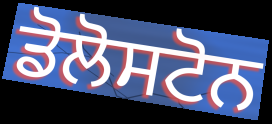
ਡੋਲੋਸਟੋਨ